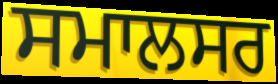
ਸਮਾਲਸਰ